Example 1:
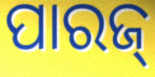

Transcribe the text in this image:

ପାରଜ୍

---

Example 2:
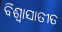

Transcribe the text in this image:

ବିଶ୍ୱାସାତୀତ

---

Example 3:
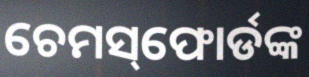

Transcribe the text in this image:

ଚେମସ୍‌ଫୋର୍ଡଙ୍କ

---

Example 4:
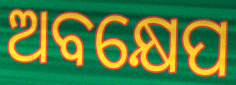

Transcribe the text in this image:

ଅବକ୍ଷେପ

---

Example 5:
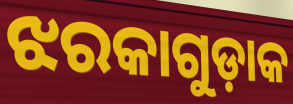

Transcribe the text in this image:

ଝରକାଗୁଡ଼ାକ